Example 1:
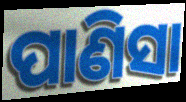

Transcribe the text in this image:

ପାଣିସା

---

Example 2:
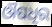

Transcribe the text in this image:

ଔଷଧିର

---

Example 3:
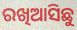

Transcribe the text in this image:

ରଖିଆସିଛୁ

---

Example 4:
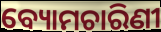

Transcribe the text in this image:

ବ୍ୟୋମଚାରିଣୀ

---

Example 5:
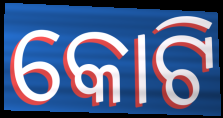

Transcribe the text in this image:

କୋଟି